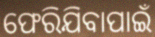
ଫେରିଯିବାପାଇଁ